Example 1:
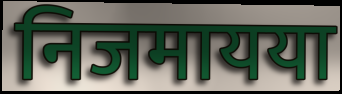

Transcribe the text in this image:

निजमायया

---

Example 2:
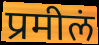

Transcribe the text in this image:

प्रमीलं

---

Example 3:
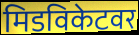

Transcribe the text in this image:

मिडविकेटवर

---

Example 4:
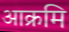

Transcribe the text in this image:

आक्रमि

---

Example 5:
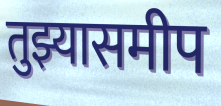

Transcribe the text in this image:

तुझ्यासमीप